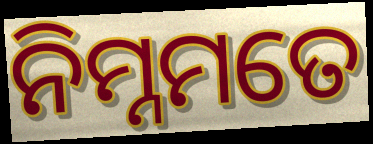
ନିମ୍ନମତେ